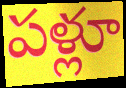
పళ్లూ